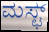
ಮಸ್ಟ್